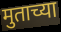
मुताच्या